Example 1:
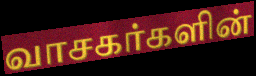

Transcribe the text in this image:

வாசகர்களின்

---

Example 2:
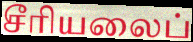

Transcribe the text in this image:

சீரியலைப்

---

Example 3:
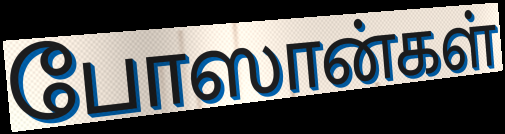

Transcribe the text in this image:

போஸான்கள்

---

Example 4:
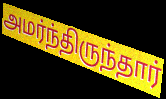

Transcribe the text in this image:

அமர்ந்திருந்தார்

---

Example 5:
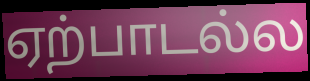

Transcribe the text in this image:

ஏற்பாடல்ல